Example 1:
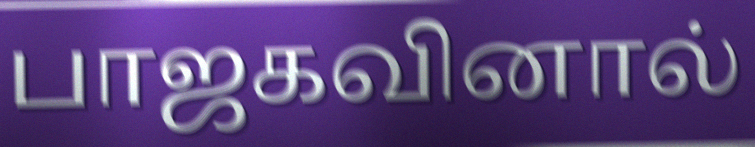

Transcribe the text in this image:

பாஜகவினால்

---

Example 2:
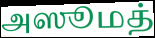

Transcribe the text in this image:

அஸூமத்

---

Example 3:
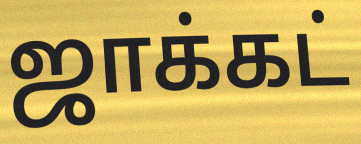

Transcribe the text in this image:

ஜாக்கட்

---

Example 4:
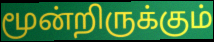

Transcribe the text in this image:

மூன்றிருக்கும்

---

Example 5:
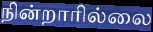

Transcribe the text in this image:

நின்றாரில்லை